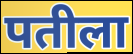
पतीला